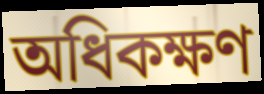
অধিকক্ষণ